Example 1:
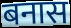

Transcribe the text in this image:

बनास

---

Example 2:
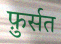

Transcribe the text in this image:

फ़ुर्सत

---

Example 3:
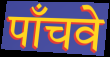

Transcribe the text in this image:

पाँचवे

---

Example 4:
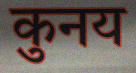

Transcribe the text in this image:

कुनय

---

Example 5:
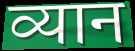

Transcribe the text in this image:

व्यान